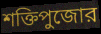
শক্তিপুজোর